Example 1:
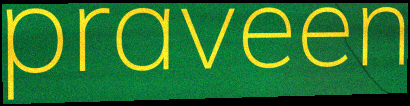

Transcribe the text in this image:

praveen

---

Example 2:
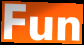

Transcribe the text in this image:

Fun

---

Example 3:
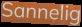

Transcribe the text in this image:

Sannelig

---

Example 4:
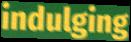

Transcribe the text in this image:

indulging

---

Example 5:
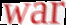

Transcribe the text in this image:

war